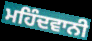
ਮਹਿੰਦਵਾਨੀ